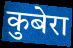
कुबेरा